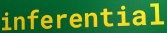
inferential